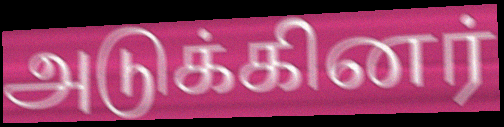
அடுக்கினர்